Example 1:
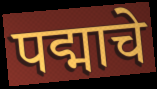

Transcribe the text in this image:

पद्माचे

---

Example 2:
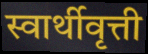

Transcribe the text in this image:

स्वार्थीवृत्ती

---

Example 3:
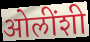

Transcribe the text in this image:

ओलींशी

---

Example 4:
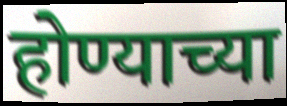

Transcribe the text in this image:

होण्याच्या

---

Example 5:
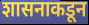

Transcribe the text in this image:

शासनाकडून